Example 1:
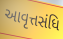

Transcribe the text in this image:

આવૃત્તસંધિ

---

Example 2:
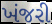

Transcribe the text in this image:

ખંજરી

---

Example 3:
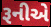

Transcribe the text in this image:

રૂનીએ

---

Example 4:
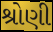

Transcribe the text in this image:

શ્રોણી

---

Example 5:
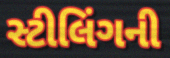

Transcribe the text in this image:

સ્ટીલિંગની